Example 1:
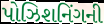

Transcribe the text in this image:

પોઝિશનિંગની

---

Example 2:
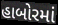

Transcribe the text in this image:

હાબોરમાં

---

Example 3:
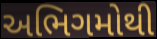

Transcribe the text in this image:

અભિગમોથી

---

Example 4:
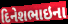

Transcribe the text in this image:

દિનેશભાઇના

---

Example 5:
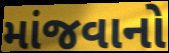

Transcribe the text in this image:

માંજવાનો